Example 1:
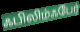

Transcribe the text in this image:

ஃபிலிம்ஃபேர்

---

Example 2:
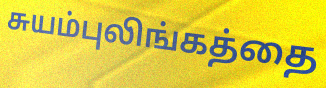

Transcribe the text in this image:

சுயம்புலிங்கத்தை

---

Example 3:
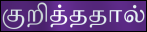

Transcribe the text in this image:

குறித்ததால்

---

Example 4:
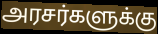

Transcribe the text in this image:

அரசர்களுக்கு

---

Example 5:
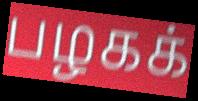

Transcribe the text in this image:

பழகக்